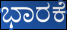
ಭಾರಕೆ